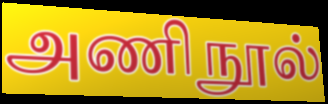
அணிநூல்